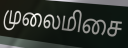
முலைமிசை